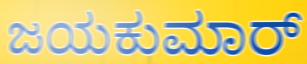
ಜಯಕುಮಾರ್